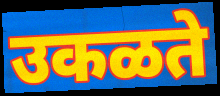
उकळते